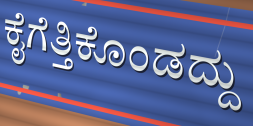
ಕೈಗೆತ್ತಿಕೊಂಡದ್ದು